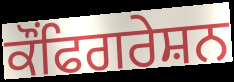
ਕੌਂਫਿਗਰੇਸ਼ਨ